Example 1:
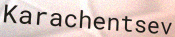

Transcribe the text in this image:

Karachentsev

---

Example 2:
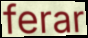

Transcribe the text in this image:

ferar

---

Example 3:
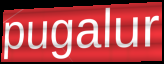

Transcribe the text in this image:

pugalur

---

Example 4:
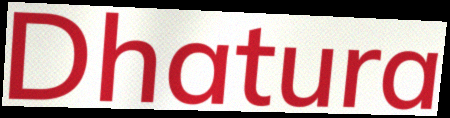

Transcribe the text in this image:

Dhatura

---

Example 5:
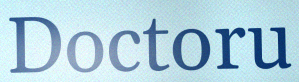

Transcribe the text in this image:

Doctoru